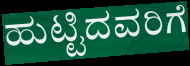
ಹುಟ್ಟಿದವರಿಗೆ